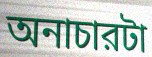
অনাচারটা